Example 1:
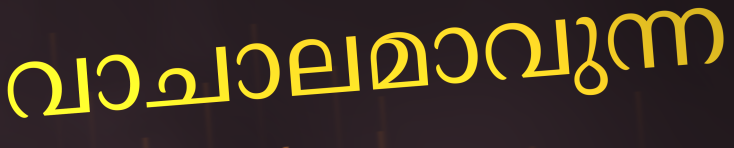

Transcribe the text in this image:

വാചാലമാവുന്ന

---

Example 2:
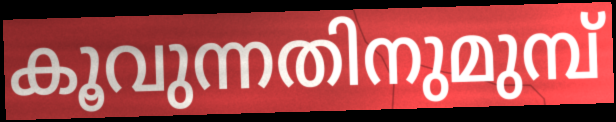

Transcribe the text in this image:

കൂവുന്നതിനുമുമ്പ്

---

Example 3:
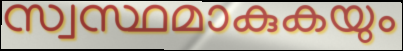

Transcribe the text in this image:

സ്വസ്ഥമാകുകയും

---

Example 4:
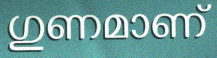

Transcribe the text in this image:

ഗുണമാണ്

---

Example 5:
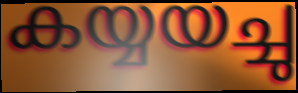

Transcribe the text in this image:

കയ്യയച്ചു